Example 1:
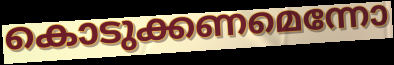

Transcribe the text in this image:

കൊടുക്കണമെന്നോ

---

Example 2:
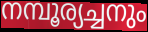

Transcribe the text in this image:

നമ്പൂര്യച്ചനും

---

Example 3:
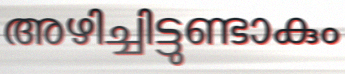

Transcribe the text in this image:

അഴിച്ചിട്ടുണ്ടാകും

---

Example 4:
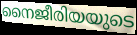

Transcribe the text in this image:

നൈജീരിയയുടെ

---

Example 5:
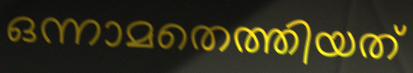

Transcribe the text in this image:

ഒന്നാമതെത്തിയത്